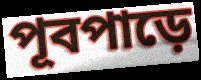
পূবপাড়ে